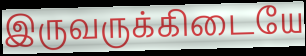
இருவருக்கிடையே